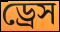
ড্রেস